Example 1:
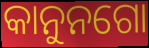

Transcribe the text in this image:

କାନୁନଗୋ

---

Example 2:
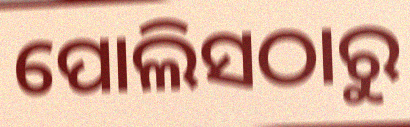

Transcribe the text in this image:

ପୋଲିସଠାରୁ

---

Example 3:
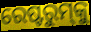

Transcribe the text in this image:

ରେଷ୍ଟରୁମ୍‌କୁ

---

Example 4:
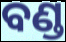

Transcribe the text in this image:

ବଣ୍ଡ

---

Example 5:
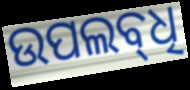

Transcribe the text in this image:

ଉପଲବ୍‍ଧି